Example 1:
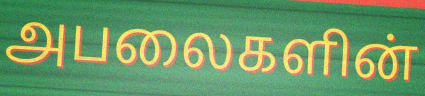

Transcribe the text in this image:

அபலைகளின்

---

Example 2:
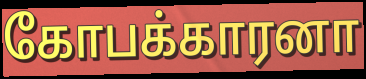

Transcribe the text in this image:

கோபக்காரனா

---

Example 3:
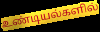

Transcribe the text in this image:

உண்டியல்களில்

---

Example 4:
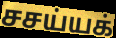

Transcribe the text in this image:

சசய்யக்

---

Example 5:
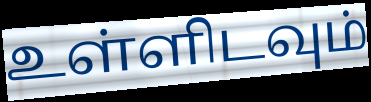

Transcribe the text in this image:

உள்ளிடவும்